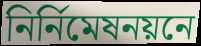
নির্নিমেষনয়নে